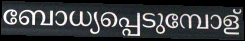
ബോധ്യപ്പെടുമ്പോള്